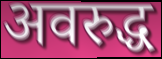
अवरुद्ध